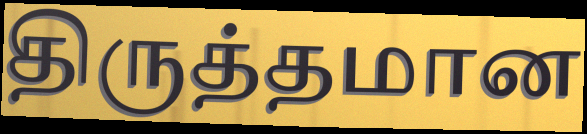
திருத்தமான